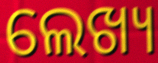
ଲେଖ୍ୟ